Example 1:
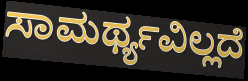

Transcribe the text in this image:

ಸಾಮರ್ಥ್ಯವಿಲ್ಲದೆ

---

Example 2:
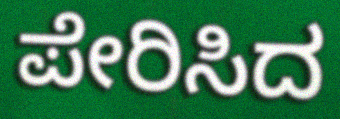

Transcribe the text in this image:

ಪೇರಿಸಿದ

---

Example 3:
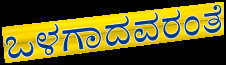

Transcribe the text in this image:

ಒಳಗಾದವರಂತೆ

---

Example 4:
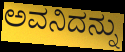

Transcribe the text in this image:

ಅವನಿದನ್ನು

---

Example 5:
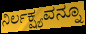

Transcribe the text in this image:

ನಿರ್ಲಕ್ಷ್ಯವನ್ನೂ